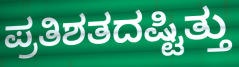
ಪ್ರತಿಶತದಷ್ಟಿತ್ತು